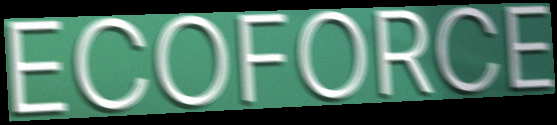
ECOFORCE